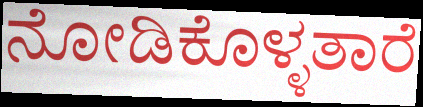
ನೋಡಿಕೊಳ್ಳತಾರೆ